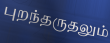
புறந்தருதலும்